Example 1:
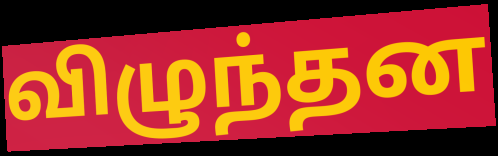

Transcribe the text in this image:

விழுந்தன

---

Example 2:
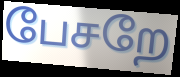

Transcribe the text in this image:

பேசறே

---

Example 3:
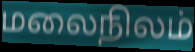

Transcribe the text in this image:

மலைநிலம்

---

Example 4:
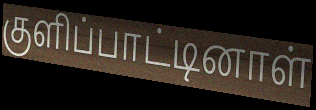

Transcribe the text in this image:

குளிப்பாட்டினாள்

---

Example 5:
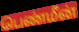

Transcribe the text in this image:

பெண்மீன்